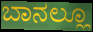
ಬಾನಲ್ಲೂ